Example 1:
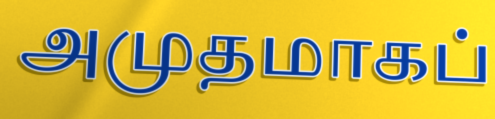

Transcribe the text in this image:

அமுதமாகப்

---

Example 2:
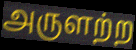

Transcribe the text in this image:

அருளற்ற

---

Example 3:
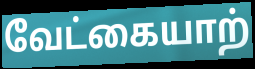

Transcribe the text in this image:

வேட்கையாற்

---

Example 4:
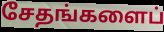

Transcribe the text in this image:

சேதங்களைப்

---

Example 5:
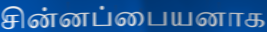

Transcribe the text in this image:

சின்னப்பையனாக